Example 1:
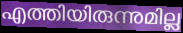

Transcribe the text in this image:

എത്തിയിരുന്നുമില്ല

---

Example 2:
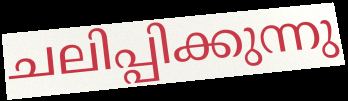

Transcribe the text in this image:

ചലിപ്പിക്കുന്നു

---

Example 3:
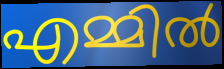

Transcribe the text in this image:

എമ്മിൽ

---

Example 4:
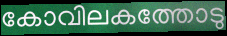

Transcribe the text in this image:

കോവിലകത്തോടു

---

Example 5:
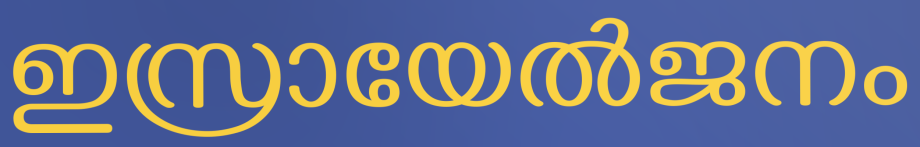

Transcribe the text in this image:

ഇസ്രായേൽജനം